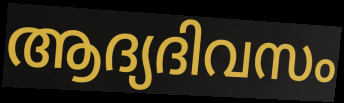
ആദ്യദിവസം